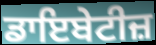
ਡਾਇਬੇਟੀਜ਼